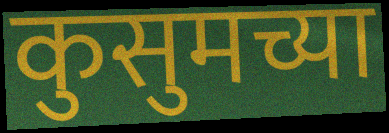
कुसुमच्या